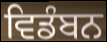
ਵਿਡੰਬਨ